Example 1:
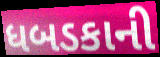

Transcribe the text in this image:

ધબડકાની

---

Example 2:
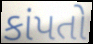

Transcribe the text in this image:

કાંપતો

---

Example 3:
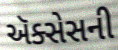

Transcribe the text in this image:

ઍક્સેસની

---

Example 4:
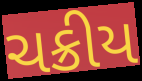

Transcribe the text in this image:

ચક્રીય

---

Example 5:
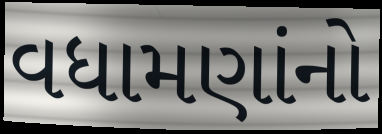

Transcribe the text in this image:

વધામણાંનો